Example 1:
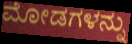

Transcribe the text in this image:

ಮೋಡಗಳನ್ನು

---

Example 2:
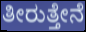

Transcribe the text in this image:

ತೀರುತ್ತೇನೆ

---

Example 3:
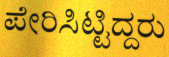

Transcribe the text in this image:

ಪೇರಿಸಿಟ್ಟಿದ್ದರು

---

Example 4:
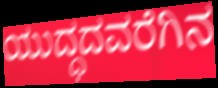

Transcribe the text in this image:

ಯುದ್ಧದವರೆಗಿನ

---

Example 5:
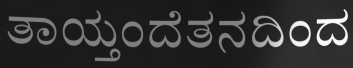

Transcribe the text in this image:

ತಾಯ್ತಂದೆತನದಿಂದ